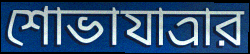
শোভাযাত্রার